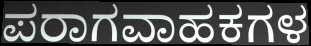
ಪರಾಗವಾಹಕಗಳ